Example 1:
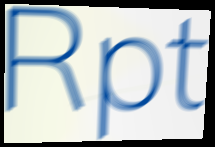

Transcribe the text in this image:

Rpt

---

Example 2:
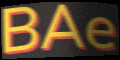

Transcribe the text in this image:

BAe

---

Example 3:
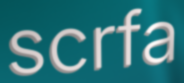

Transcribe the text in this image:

scrfa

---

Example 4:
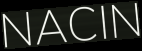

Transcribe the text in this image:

NACIN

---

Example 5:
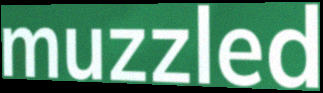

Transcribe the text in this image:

muzzled